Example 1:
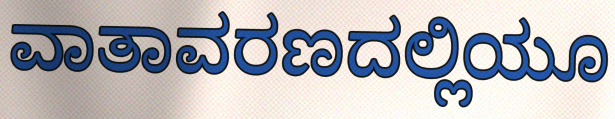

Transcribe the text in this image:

ವಾತಾವರಣದಲ್ಲಿಯೂ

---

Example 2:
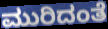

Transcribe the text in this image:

ಮುರಿದಂತೆ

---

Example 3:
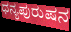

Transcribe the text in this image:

ಧನ್ಯಪುರುಷನ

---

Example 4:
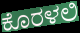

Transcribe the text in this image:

ಕೊರಳಲಿ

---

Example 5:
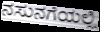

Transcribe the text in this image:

ನಸುನಗೆಯಲ್ಲಿ